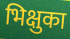
भिक्षुका